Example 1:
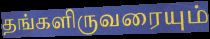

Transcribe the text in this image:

தங்களிருவரையும்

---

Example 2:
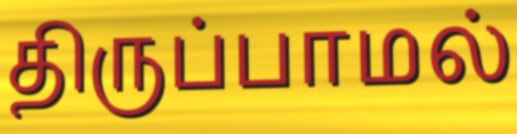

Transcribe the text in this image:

திருப்பாமல்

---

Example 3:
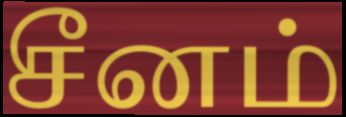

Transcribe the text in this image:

சீனம்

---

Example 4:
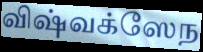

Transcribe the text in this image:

விஷ்வக்ஸேந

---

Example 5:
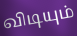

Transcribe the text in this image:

விடியும்